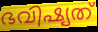
ഭവിഷ്യത്